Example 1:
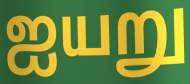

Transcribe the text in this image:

ஐயறு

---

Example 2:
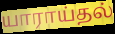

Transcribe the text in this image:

யாராய்தல்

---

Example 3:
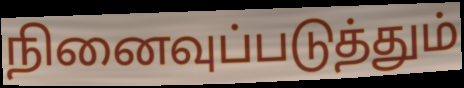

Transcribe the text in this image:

நினைவுப்படுத்தும்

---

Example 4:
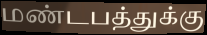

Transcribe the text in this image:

மண்டபத்துக்கு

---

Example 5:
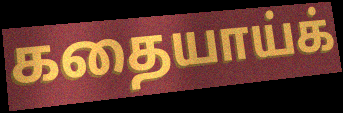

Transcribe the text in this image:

கதையாய்க்